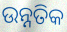
ଉନ୍ନତିକ